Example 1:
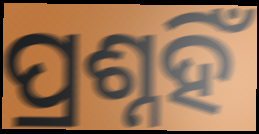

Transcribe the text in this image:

ପ୍ରଶ୍ନହିଁ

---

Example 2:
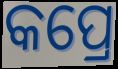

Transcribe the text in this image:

କପ୍ରେ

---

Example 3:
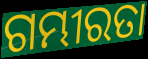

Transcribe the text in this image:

ଗମ୍ଭୀରତା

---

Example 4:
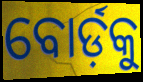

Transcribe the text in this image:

ବୋର୍ଡ଼କୁ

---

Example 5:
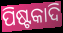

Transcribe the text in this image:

ପିଷ୍ଟକାଦି